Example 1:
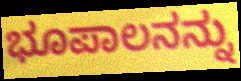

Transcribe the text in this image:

ಭೂಪಾಲನನ್ನು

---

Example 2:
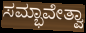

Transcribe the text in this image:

ಸಮ್ಭಾವೇತ್ವಾ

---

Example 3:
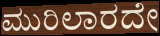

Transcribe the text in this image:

ಮುರಿಲಾರದೇ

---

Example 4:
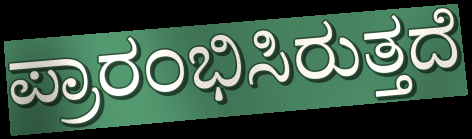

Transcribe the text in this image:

ಪ್ರಾರಂಭಿಸಿರುತ್ತದೆ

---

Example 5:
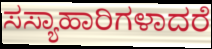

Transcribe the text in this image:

ಸಸ್ಯಾಹಾರಿಗಳಾದರೆ